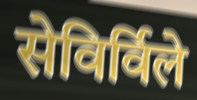
सेविर्विले